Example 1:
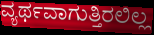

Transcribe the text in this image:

ವ್ಯರ್ಥವಾಗುತ್ತಿರಲಿಲ್ಲ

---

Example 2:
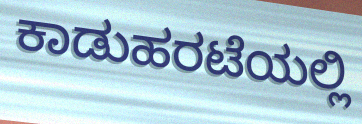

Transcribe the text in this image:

ಕಾಡುಹರಟೆಯಲ್ಲಿ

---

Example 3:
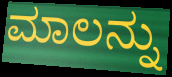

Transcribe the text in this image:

ಮಾಲನ್ನು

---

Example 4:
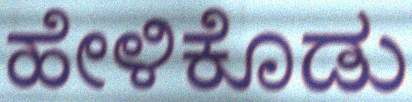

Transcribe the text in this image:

ಹೇಳಿಕೊಡು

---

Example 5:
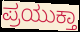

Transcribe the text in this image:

ಪ್ರಯುಕ್ತಾ